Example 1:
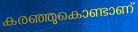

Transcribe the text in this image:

കരഞ്ഞുകൊണ്ടാണ്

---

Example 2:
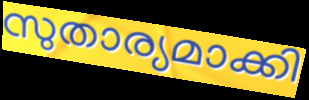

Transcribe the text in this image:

സുതാര്യമാക്കി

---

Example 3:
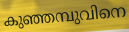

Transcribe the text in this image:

കുഞ്ഞമ്പുവിനെ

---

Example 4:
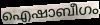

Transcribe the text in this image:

ഐഷാബീഗം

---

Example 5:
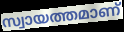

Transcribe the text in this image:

സ്വായത്തമാണ്